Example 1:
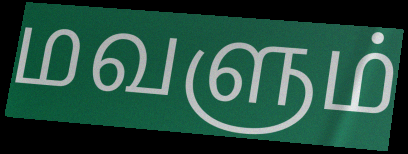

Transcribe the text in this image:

மவளும்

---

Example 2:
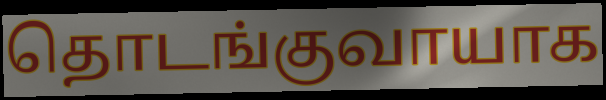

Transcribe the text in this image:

தொடங்குவாயாக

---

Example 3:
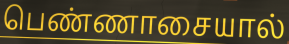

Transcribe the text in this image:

பெண்ணாசையால்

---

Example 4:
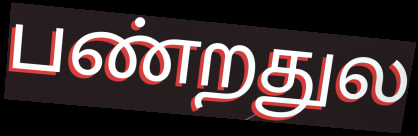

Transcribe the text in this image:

பண்றதுல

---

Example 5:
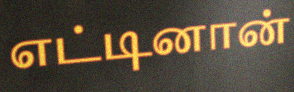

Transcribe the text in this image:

எட்டினான்